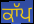
ਕਾੱਪ